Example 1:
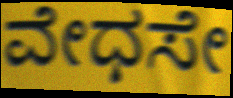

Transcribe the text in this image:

ವೇಧಸೇ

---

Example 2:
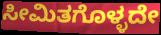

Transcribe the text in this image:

ಸೀಮಿತಗೊಳ್ಳದೇ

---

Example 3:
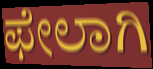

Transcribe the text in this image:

ಫೇಲಾಗಿ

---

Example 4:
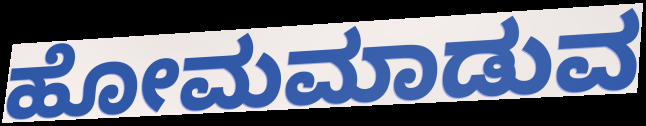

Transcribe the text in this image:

ಹೋಮಮಾಡುವ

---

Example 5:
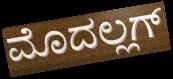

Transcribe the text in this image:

ಮೊದಲ್ಲಗ್